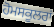
ਹੋਮਸਕੂਲਰਾਂ